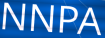
NNPA